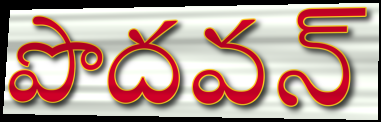
పొదవన్